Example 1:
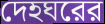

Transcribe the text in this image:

দেহঘরের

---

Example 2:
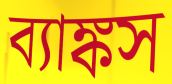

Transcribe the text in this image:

ব্যাঙ্কস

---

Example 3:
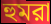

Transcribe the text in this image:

হুমরা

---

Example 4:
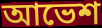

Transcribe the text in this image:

আভেশ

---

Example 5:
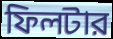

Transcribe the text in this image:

ফিলটার